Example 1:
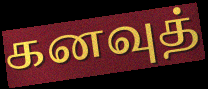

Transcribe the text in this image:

கனவுத்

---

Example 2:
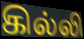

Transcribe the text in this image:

கில்லி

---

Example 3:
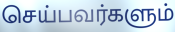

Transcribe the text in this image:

செய்பவர்களும்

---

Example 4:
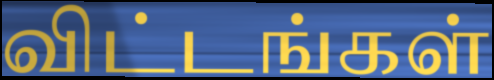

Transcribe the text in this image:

விட்டங்கள்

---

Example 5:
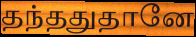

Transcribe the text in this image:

தந்ததுதானே